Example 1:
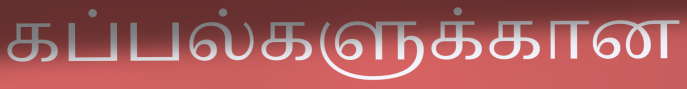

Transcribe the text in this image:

கப்பல்களுக்கான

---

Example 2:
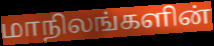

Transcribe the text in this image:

மாநிலங்களின்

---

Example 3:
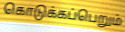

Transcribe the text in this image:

கொடுக்கப்பெறும்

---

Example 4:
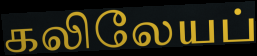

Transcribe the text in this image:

கலிலேயப்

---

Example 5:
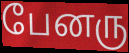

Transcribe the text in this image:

பேனரு